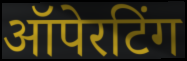
ऑपेरटिंग